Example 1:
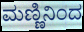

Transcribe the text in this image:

ಮಣ್ಣಿನಿಂದ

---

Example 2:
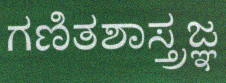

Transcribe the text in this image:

ಗಣಿತಶಾಸ್ತ್ರಜ್ಞ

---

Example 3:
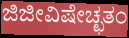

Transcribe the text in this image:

ಜಿಜೀವಿಷೇಚ್ಛತಂ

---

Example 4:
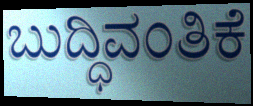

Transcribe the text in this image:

ಬುದ್ಧಿವಂತಿಕೆ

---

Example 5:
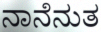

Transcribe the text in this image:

ನಾನೆನುತ